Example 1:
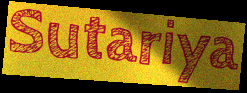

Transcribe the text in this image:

Sutariya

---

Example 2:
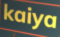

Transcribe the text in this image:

kaiya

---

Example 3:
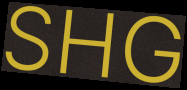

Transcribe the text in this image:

SHG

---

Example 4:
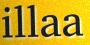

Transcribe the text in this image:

illaa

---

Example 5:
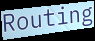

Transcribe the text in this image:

Routing